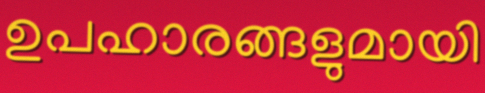
ഉപഹാരങ്ങളുമായി